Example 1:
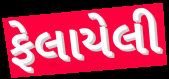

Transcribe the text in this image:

ફેલાયેલી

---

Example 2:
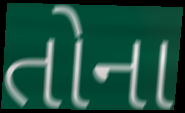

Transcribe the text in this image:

તોના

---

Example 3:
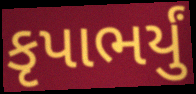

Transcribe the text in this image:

કૃપાભર્યું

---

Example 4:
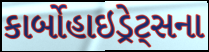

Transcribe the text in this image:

કાર્બોહાઇડ્રેટ્સના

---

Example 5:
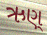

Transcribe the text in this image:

ઋણ્